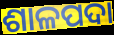
ଶାଳପଦା